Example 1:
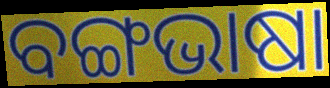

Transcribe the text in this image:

ବଙ୍ଗଭାଷା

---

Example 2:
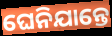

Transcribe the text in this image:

ଘେନିଯାନ୍ତେ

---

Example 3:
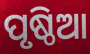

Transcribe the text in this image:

ପୃଷ୍ଠିଆ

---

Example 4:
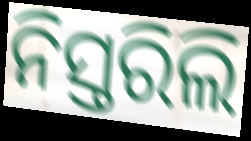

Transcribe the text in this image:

ନିସ୍ତରିଲି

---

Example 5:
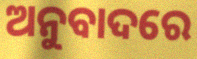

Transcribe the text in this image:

ଅନୁବାଦରେ